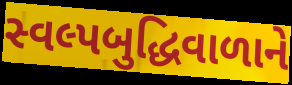
સ્વલ્પબુદ્ધિવાળાને